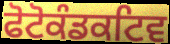
ਫੋਟੋਕੰਡਕਟਿਵ